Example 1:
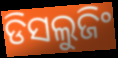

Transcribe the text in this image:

ଡିସଲୁଜିଂ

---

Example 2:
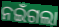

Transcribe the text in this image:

ନଇଁଗଲା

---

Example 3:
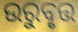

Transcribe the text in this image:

ଉରୁବୃତ୍ତ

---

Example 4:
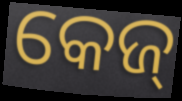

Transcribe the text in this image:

କେଜ୍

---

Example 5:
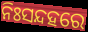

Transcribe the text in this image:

ନିଃସନ୍ଦହରେ